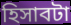
হিসাবটা